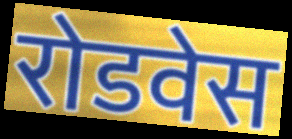
रोडवेस